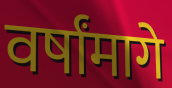
वर्षांमागे